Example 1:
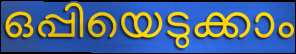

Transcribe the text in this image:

ഒപ്പിയെടുക്കാം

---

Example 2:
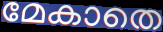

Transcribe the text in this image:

മേകാതെ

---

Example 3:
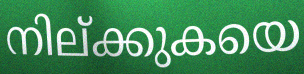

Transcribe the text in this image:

നില്ക്കുകയെ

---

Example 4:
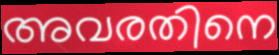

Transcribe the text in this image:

അവരതിനെ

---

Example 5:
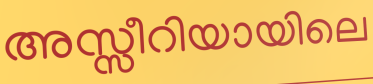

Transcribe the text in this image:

അസ്സീറിയായിലെ